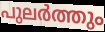
പുലർത്തും